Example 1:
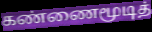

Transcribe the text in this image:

கண்ணைமூடித்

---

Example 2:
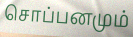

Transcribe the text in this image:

சொப்பனமும்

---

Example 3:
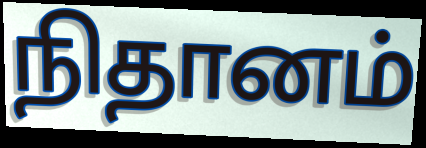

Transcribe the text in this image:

நிதானம்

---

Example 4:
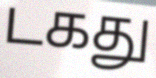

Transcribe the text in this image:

டகது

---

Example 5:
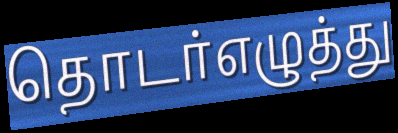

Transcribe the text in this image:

தொடர்எழுத்து